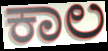
ಕಾಲ